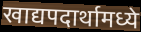
खाद्यपदार्थामध्ये